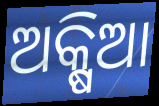
ଅକ୍ଷିଆ